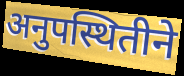
अनुपस्थितीने